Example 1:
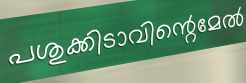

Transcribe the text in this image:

പശുക്കിടാവിന്റെമേൽ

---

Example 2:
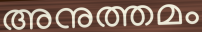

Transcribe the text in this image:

അനുത്തമം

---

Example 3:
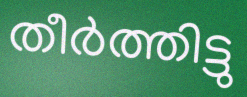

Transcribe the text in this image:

തീർത്തിട്ടു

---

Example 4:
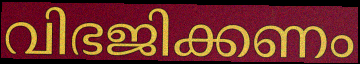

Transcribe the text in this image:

വിഭജിക്കണം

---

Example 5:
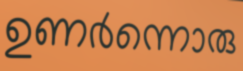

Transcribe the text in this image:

ഉണർന്നൊരു